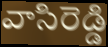
వాసిరెడ్డి